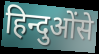
हिन्दुओंसे